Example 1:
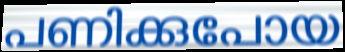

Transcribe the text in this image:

പണിക്കുപോയ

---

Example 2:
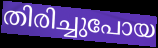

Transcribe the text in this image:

തിരിച്ചുപോയ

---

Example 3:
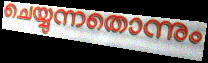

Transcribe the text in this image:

ചെയ്യുന്നതൊന്നും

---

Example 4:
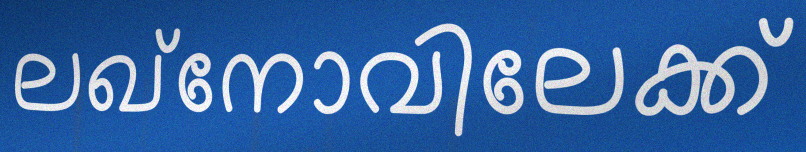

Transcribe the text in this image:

ലഖ്നോവിലേക്ക്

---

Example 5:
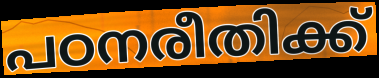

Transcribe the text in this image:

പഠനരീതിക്ക്